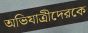
অভিযাত্রীদেরকে